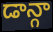
డాన్గా